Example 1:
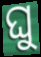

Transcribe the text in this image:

ଘୁ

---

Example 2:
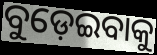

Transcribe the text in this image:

ବୁଡ଼େଇବାକୁ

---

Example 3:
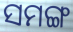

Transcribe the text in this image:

ସମଙ୍ଗ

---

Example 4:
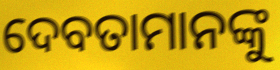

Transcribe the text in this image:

ଦେବତାମାନଙ୍କୁ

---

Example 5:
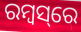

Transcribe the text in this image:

ରମ୍ବସ୍‌ରେ